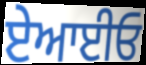
ਏਆਈਓ